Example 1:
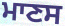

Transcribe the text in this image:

ਮਾਣਸ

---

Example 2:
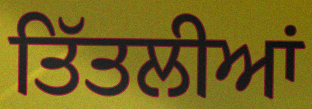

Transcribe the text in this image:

ਤਿੱਤਲੀਆਂ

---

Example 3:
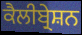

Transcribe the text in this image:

ਕੈਲੀਬ੍ਰੇਸ਼ਨ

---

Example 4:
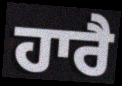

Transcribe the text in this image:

ਹਾਰੈ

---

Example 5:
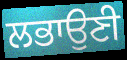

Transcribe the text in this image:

ਲਭਾਉਣੀ